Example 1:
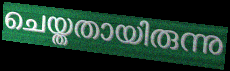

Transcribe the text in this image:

ചെയ്തതായിരുന്നു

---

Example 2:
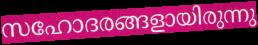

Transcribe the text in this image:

സഹോദരങ്ങളായിരുന്നു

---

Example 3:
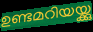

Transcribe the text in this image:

ഉണ്ടമറിയയ്ക്കു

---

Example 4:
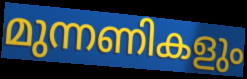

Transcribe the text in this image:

മുന്നണികളും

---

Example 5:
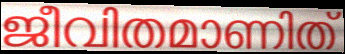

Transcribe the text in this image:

ജീവിതമാണിത്